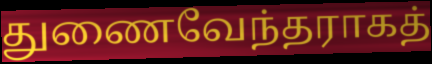
துணைவேந்தராகத்